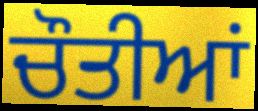
ਚੌਤੀਆਂ